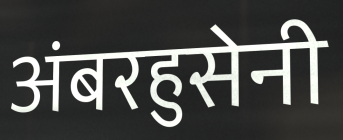
अंबरहुसेनी